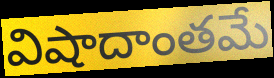
విషాదాంతమే